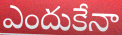
ఎందుకేనా